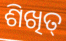
ଶିଖିତ୍